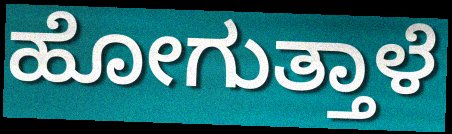
ಹೋಗುತ್ತಾಳೆ